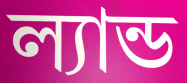
ল্যান্ড